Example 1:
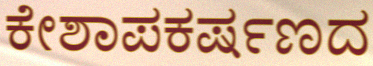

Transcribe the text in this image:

ಕೇಶಾಪಕರ್ಷಣದ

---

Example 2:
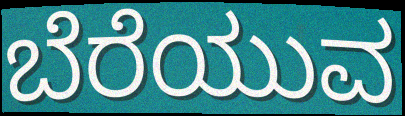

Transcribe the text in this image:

ಬೆರೆಯುವ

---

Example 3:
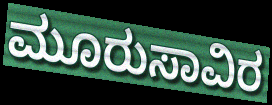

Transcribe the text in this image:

ಮೂರುಸಾವಿರ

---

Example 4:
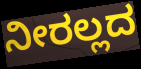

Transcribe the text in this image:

ನೀರಲ್ಲದ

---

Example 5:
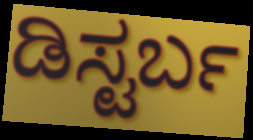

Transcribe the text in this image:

ಡಿಸ್ಟರ್ಬ